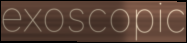
exoscopic